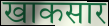
खाकसार